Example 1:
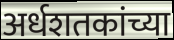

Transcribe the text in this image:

अर्धशतकांच्या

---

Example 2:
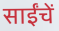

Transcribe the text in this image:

साईंचें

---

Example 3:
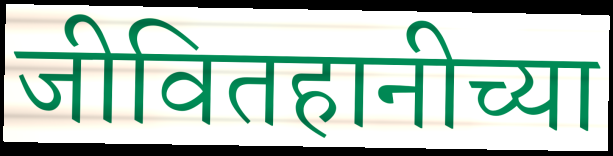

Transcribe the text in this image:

जीवितहानीच्या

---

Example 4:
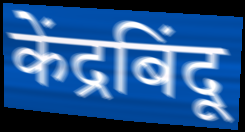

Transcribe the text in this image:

केंद्रबिंदू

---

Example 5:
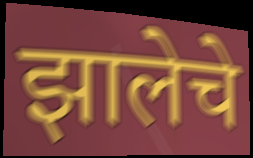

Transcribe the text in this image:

झालेचे